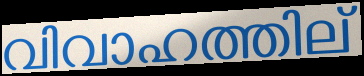
വിവാഹത്തില്